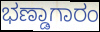
ಭಣ್ಡಾಗಾರಂ